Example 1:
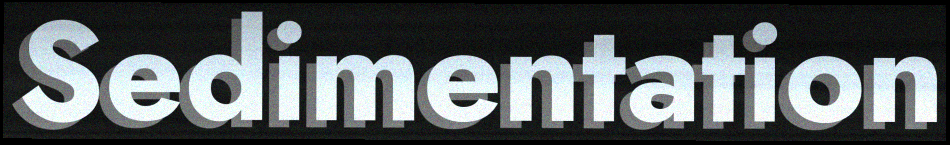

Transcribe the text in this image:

Sedimentation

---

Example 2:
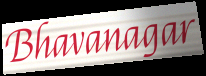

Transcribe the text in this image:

Bhavanagar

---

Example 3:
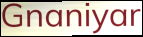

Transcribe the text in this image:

Gnaniyar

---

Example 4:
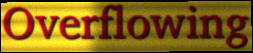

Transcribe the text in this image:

Overflowing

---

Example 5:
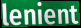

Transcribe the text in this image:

lenient